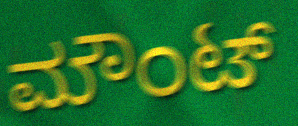
ಮೌಂಟ್